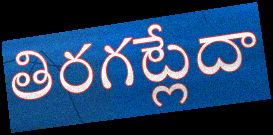
తిరగట్లేదా